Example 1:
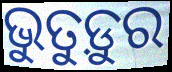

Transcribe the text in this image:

ଭୁତୁଡ଼ୁର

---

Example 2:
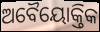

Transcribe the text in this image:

ଅବୈୟୋକ୍ତିକ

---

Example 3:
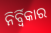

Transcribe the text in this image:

ନିର୍ବ୍ବିକାର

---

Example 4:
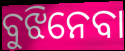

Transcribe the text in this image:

ବୁଝିନେବା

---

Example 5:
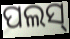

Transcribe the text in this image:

ପଲସ୍